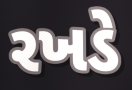
રખડે